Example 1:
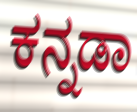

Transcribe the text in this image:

ಕನ್ನಡಾ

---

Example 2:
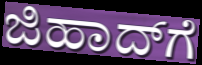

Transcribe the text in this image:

ಜಿಹಾದ್‌ಗೆ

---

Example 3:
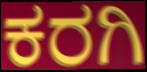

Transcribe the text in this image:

ಕರಗಿ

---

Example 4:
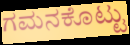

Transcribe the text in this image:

ಗಮನಕೊಟ್ಟು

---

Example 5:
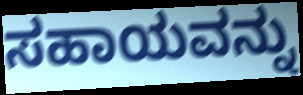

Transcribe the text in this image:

ಸಹಾಯವನ್ನು